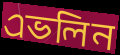
এভলিন